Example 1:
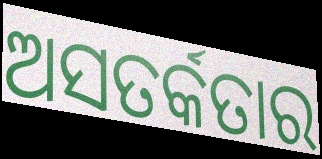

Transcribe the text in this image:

ଅସତର୍କତାର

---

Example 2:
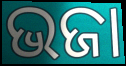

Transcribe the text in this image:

ଭଜା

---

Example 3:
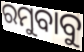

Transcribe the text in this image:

ରମୁବାବୁ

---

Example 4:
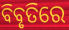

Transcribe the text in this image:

ବିବୃତିରେ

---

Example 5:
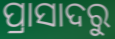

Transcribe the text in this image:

ପ୍ରାସାଦରୁ